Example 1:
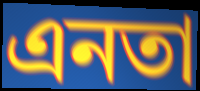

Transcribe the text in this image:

এনতা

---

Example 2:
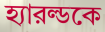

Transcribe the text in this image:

হ্যারল্ডকে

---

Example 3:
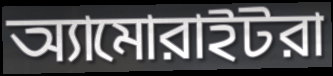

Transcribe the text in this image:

অ্যামোরাইটরা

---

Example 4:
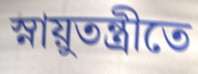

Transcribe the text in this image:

স্নায়ুতন্ত্রীতে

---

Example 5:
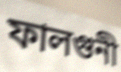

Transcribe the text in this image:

ফালগুনী